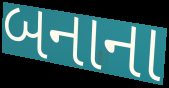
બનાના